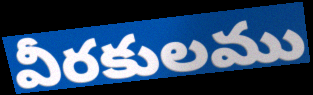
వీరకులము